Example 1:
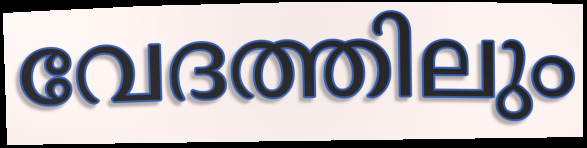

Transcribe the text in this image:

വേദത്തിലും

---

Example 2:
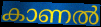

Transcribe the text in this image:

കാണൽ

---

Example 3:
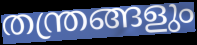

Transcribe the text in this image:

തന്ത്രങ്ങളും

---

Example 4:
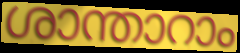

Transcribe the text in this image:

ശാന്താറാം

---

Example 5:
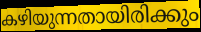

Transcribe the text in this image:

കഴിയുന്നതായിരിക്കും